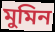
মুমিন